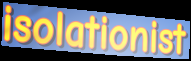
isolationist